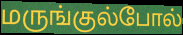
மருங்குல்போல்